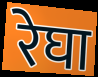
रेघा